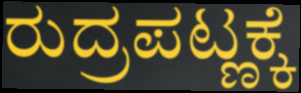
ರುದ್ರಪಟ್ಣಕ್ಕೆ